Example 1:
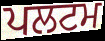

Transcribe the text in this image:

ਪਲਟਮ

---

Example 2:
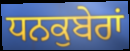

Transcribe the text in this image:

ਧਨਕੁਬੇਰਾਂ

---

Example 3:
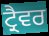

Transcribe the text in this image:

ਟ੍ਰੈਵਰ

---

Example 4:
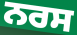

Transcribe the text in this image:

ਨਰਸ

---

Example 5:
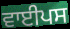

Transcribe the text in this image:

ਵਾਈਪਸ